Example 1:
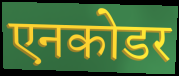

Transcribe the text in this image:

एनकोडर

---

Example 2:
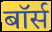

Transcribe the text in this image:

बॉर्स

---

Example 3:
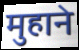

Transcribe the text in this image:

मुहाने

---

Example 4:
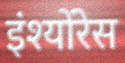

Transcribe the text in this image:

इंश्योंरेस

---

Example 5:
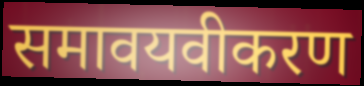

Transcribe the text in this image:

समावयवीकरण